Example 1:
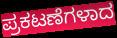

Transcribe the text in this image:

ಪ್ರಕಟಣೆಗಳಾದ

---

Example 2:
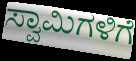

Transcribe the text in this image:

ಸ್ವಾಮಿಗಳಿಗೆ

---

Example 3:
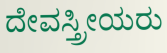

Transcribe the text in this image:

ದೇವಸ್ತ್ರೀಯರು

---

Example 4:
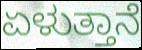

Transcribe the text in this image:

ಏಳುತ್ತಾನೆ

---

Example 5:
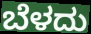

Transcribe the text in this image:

ಬೆಳದು